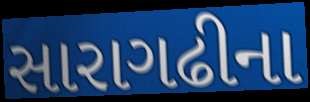
સારાગઢીના